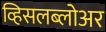
व्हिसलब्लोअर